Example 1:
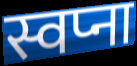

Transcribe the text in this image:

स्‍वप्‍ना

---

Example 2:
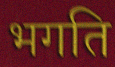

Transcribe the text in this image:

भगति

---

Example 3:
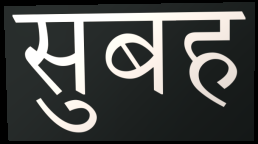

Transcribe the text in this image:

सुबह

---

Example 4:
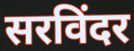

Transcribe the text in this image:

सरविंदर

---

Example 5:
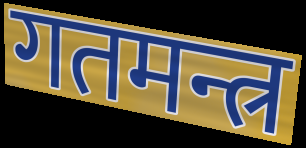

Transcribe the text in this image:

गतमन्त्र